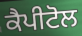
ਕੈਪੀਟੋਲ